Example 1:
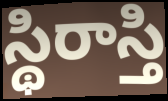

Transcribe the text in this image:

స్థిరాస్తి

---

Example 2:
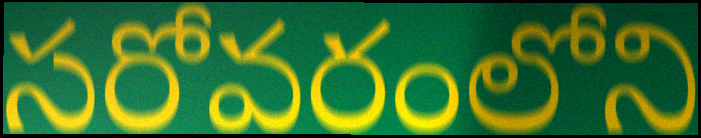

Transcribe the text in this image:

సరోవరంలోని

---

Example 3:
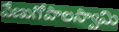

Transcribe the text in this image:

వేణుగోపాలస్వామి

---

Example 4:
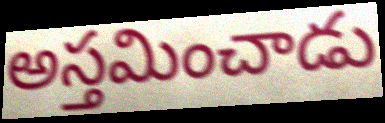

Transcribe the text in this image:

అస్తమించాడు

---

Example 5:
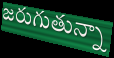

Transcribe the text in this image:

జరుగుతున్నా